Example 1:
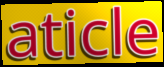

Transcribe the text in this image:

aticle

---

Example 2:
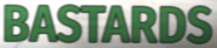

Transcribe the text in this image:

BASTARDS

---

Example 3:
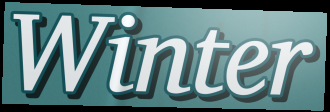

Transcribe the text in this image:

Winter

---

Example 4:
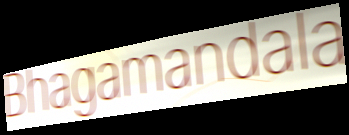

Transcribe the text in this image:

Bhagamandala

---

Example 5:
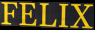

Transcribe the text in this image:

FELIX